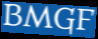
BMGF